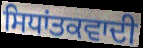
ਸਿਧਾਂਤਕਵਾਦੀ